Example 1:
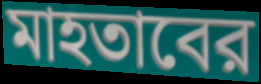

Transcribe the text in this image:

মাহতাবের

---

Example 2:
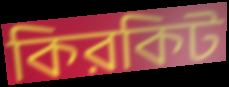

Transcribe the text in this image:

কিরকিট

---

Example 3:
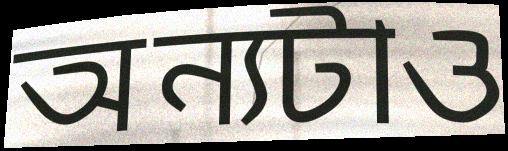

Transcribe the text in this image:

অন্যটাও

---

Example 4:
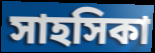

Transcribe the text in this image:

সাহসিকা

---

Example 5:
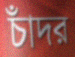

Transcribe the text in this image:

চাঁদর